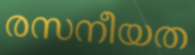
രസനീയത